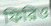
ফিরিও